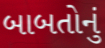
બાબતોનું